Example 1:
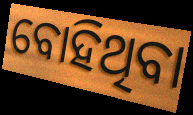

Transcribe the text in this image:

ବୋହିଥିବା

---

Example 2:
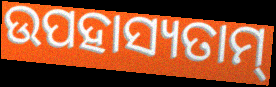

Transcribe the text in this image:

ଉପହାସ୍ୟତାମ୍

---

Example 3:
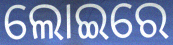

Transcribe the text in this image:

ଲୋଇରେ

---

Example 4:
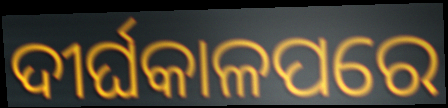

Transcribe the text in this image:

ଦୀର୍ଘକାଳପରେ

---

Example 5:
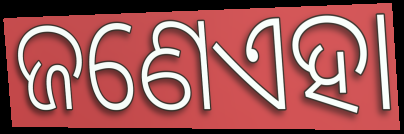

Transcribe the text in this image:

ଜଣେଏହା